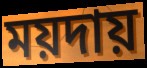
ময়দায়